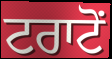
ਟਰਾਟੋਂ